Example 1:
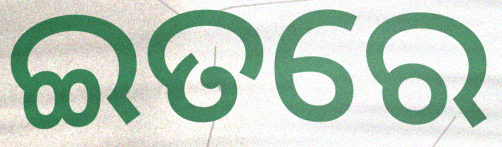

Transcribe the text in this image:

ଇତରେ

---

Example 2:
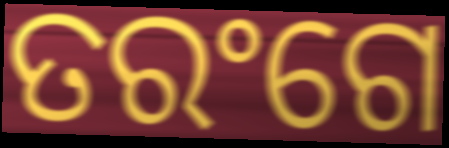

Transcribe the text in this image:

ତରଂଗେ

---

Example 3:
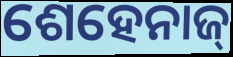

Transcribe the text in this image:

ଶେହେନାଜ୍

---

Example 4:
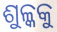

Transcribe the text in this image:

ଶୁଳ୍କକୁ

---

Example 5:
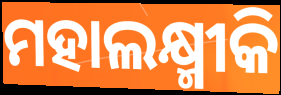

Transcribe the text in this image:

ମହାଲକ୍ଷ୍ମୀକି